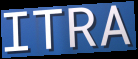
ITRA